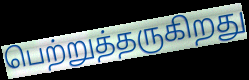
பெற்றுத்தருகிறது